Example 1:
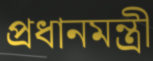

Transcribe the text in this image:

প্রধানমন্ত্রী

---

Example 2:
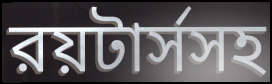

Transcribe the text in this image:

রয়টার্সসহ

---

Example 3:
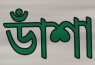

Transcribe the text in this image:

ডাঁশা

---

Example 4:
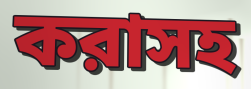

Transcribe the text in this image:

করাসহ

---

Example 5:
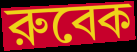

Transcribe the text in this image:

রুবেক